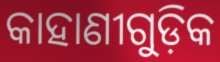
କାହାଣୀଗୁଡ଼ିକ